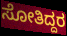
ಸೋತಿದ್ದರ